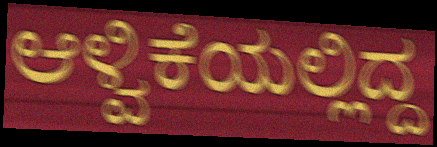
ಆಳ್ವಿಕೆಯಲ್ಲಿದ್ದ